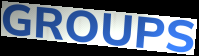
GROUPS